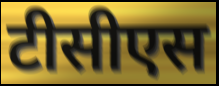
टीसीएस